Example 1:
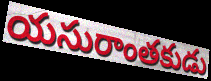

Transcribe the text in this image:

యసురాంతకుడు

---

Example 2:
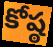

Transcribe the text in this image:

కోష్ఠ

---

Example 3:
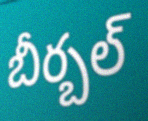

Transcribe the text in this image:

బీర్బల్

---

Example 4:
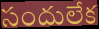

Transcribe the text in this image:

సందులేక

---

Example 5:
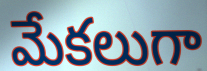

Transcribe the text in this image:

మేకలుగా